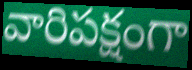
వారిపక్షంగా